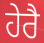
ਹੇਰੈ